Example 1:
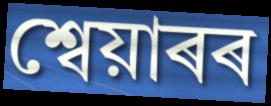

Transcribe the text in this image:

শ্বেয়াৰৰ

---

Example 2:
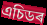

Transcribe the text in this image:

এচিডৰ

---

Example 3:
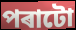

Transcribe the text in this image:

পৰাটো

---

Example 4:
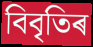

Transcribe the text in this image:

বিবৃতিৰ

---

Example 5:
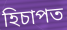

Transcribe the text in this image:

হিচাপত